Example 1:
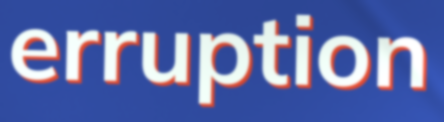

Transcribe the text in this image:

erruption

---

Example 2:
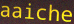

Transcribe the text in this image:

aaiche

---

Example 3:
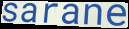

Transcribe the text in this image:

sarane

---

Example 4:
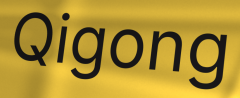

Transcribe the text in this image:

Qigong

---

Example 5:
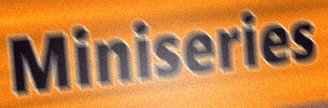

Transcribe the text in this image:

Miniseries